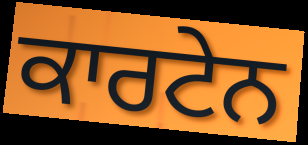
ਕਾਰਟੇਨ